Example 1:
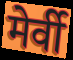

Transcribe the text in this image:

मेर्वी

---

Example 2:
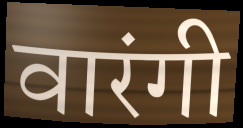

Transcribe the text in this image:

वारंगी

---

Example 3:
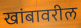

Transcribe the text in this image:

खांबावरील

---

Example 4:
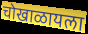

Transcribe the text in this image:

चोखाळायला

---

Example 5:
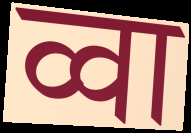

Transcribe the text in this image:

व्वा